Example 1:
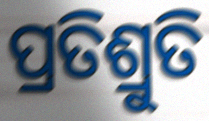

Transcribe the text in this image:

ପ୍ରତିଶ୍ରୁତି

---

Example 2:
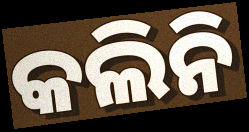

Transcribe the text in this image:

କଲିନି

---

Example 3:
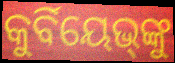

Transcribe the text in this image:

କୁର୍ବିୟେଭ୍‌ଙ୍କୁ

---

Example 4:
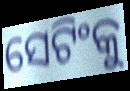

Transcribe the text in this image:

ସେଟିଂକୁ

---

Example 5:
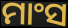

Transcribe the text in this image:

ମାଂସ